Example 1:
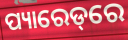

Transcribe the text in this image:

ପ୍ୟାରେଡ୍‌ରେ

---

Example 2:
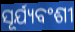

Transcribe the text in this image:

ସୂର୍ଯ୍ୟବଂଶୀ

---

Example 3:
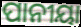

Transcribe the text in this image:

ପାନୀୟା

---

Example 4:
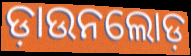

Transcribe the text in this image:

ଡ଼ାଉନଲୋଡ଼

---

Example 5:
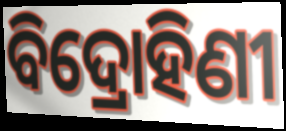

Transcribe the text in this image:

ବିଦ୍ରୋହିଣୀ